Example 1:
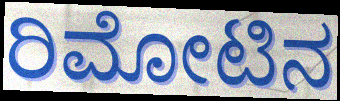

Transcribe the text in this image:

ರಿಮೋಟಿನ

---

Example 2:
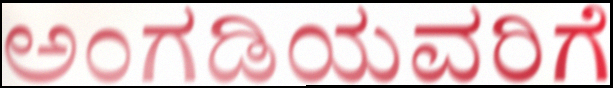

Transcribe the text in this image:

ಅಂಗಡಿಯವರಿಗೆ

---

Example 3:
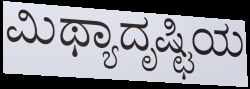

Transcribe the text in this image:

ಮಿಥ್ಯಾದೃಷ್ಟಿಯ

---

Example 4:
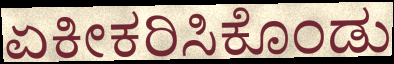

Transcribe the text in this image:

ಏಕೀಕರಿಸಿಕೊಂಡು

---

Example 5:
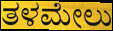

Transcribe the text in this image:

ತಳಮೇಲು